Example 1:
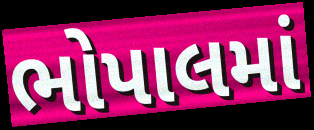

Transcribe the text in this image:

ભોપાલમાં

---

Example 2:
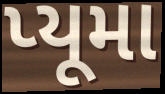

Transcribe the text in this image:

પ્યૂમા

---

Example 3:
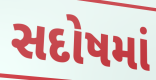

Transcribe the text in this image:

સદોષમાં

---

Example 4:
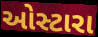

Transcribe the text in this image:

ઓસ્ટારા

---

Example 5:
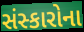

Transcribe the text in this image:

સંસ્કારોના